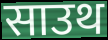
साउथ